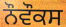
ਨੌਵੌਕਸ